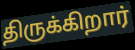
திருக்கிறார்